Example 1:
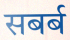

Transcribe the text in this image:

सबर्ब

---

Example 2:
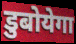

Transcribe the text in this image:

डुबोयेगा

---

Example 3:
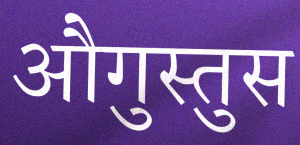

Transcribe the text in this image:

औगुस्तुस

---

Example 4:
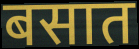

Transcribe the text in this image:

बसात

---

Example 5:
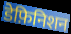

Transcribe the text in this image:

डेफ़िनिशन